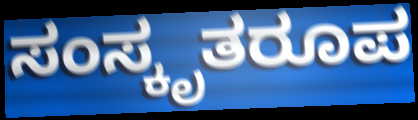
ಸಂಸ್ಕೃತರೂಪ